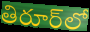
తిరూర్‌లో